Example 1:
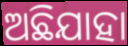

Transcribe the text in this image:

ଅଛିଯାହା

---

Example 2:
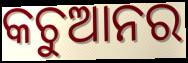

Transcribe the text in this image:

କଚୁଆନର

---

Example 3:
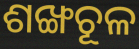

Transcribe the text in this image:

ଶଙ୍ଖଚୂଳ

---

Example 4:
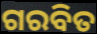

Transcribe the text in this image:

ଗରବିତ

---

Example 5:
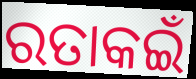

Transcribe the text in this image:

ରତାକଇଁ